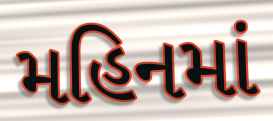
મહિનમાં